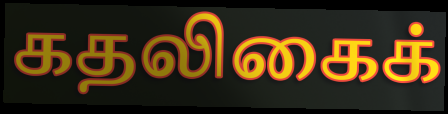
கதலிகைக்